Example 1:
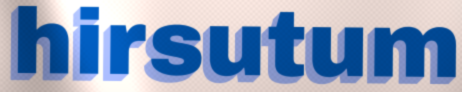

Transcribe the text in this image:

hirsutum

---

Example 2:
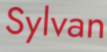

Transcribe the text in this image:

Sylvan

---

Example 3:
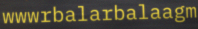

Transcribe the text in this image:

wwwrbalarbalaagm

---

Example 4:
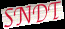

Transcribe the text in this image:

SNDT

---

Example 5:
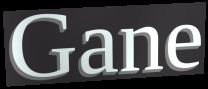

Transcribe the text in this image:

Gane